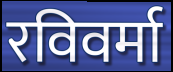
रविवर्मा